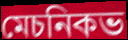
মেচনিকভ